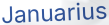
Januarius